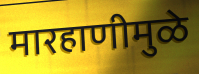
मारहाणीमुळे